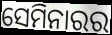
ସେମିନାରର